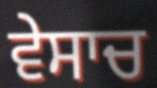
ਵੇਸਾਚ